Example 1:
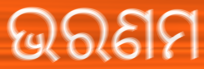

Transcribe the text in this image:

ଭରଣମ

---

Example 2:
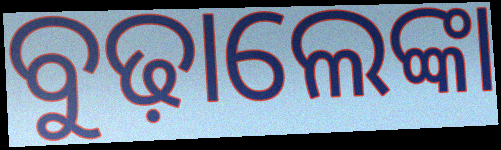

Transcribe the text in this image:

ବୁଢ଼ାଲେଙ୍କା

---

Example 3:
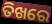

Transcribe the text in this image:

ତିଖରେ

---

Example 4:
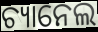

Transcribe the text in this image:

ଚ୍ୟାନେଲ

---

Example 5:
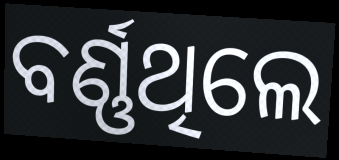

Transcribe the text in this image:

ବର୍ଣ୍ଣଥିଲେ